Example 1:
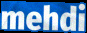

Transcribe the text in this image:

mehdi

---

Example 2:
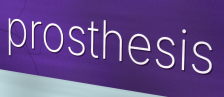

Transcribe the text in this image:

prosthesis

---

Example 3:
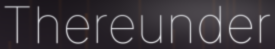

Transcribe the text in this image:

Thereunder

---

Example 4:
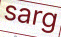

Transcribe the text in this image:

sarg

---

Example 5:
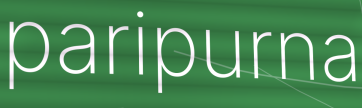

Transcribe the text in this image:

paripurna